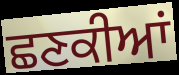
ਛਣਕੀਆਂ